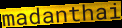
madanthai